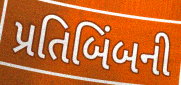
પ્રતિબિંબની